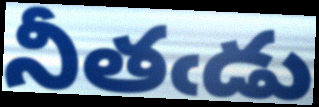
నీతఁడు